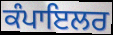
ਕੰਪਾਇਲਰ